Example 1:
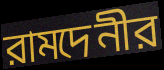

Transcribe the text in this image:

রামদেনীর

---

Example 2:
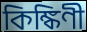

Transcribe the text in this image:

কিঙ্কিণী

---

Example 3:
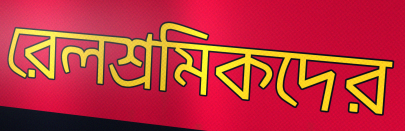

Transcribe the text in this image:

রেলশ্রমিকদের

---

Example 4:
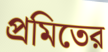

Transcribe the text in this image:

প্রমিতের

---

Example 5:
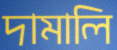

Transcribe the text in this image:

দামালি